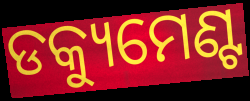
ଡକ୍ୟୁମେଣ୍ଟ